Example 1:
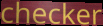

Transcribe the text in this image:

checker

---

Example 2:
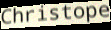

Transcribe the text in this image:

Christope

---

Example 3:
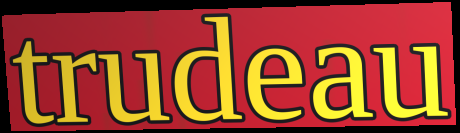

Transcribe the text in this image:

trudeau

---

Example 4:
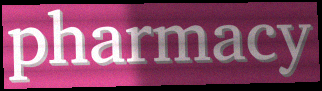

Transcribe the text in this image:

pharmacy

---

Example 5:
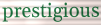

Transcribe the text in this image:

prestigious